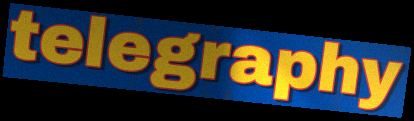
telegraphy